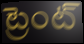
ట్రెంట్